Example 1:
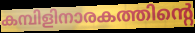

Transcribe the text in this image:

കമ്പിളിനാരകത്തിന്റെ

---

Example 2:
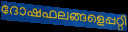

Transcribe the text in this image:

ദോഷഫലങ്ങളെപ്പറ്റി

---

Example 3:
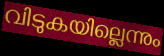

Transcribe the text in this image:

വിടുകയില്ലെന്നും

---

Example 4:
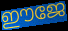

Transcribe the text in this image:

ഈജേ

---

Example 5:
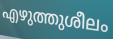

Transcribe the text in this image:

എഴുത്തുശീലം